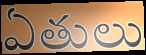
ఏతులు